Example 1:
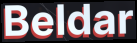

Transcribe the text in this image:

Beldar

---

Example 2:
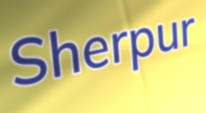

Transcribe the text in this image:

Sherpur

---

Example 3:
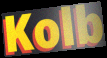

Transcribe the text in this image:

Kolb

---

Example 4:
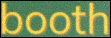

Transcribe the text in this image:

booth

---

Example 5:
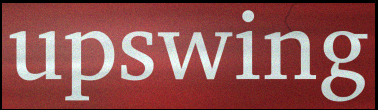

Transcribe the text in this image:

upswing